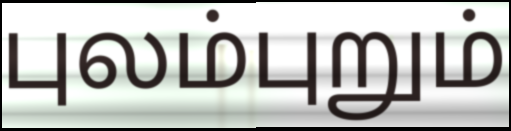
புலம்புறும்